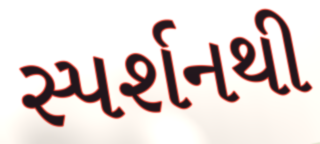
સ્પર્શનથી